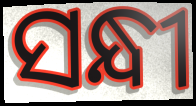
ସନ୍ଧୀ